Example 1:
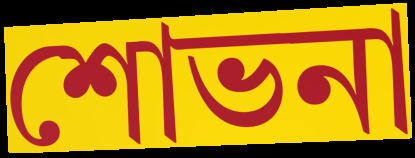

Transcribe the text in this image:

শোভনা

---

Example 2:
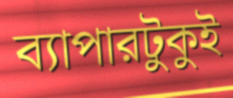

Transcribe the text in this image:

ব্যাপারটুকুই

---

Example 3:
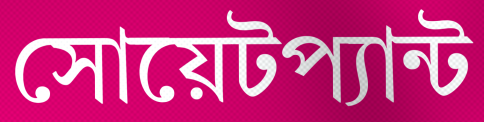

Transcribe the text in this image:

সোয়েটপ্যান্ট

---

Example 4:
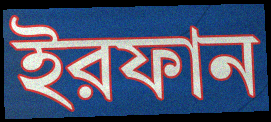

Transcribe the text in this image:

ইরফান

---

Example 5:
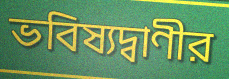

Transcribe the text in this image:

ভবিষ্যদ্বাণীর